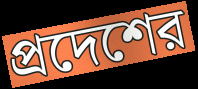
প্রদেশের